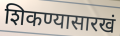
शिकण्यासारखं